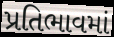
પ્રતિભાવમાં